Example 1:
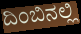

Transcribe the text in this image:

ದಿಂಬಿನಲ್ಲಿ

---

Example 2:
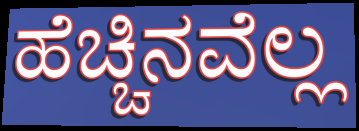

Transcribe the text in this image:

ಹೆಚ್ಚಿನವೆಲ್ಲ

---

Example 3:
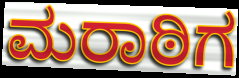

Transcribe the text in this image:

ಮರಾಠಿಗ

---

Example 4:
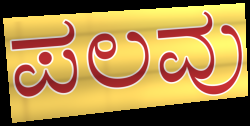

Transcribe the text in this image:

ಪಲವು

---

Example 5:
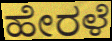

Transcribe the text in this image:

ಹೇರಳೆ